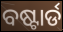
ବଷ୍ଟାର୍ଡ